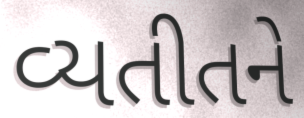
વ્યતીતને